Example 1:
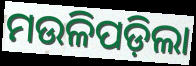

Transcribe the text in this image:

ମଉଳିପଡ଼ିଲା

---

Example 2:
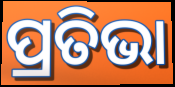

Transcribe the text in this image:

ପ୍ରତିଭା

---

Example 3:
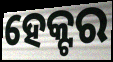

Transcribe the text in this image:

ହେକ୍ଟର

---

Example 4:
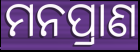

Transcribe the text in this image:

ମନପ୍ରାଣ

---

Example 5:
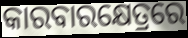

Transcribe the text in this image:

କାରବାରକ୍ଷେତ୍ରରେ